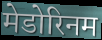
मेडोरिनम